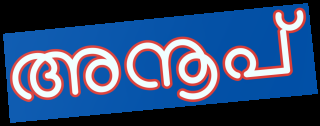
അനൂപ്